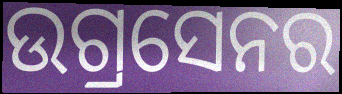
ଉଗ୍ରସେନର